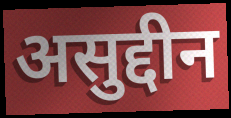
असुद्दीन